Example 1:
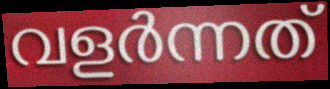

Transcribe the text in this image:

വളർന്നത്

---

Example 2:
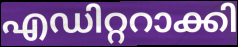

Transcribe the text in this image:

എഡിറ്ററാക്കി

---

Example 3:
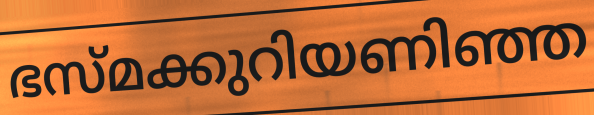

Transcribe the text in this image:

ഭസ്മക്കുറിയണിഞ്ഞ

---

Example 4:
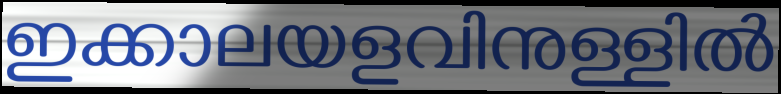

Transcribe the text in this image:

ഇക്കാലയളവിനുള്ളിൽ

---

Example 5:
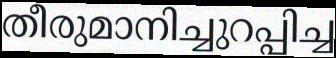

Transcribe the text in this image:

തീരുമാനിച്ചുറപ്പിച്ച